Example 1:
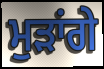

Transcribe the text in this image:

ਮੁੜਾਂਗੇ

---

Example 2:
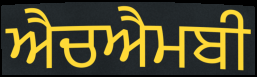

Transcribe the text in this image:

ਐਚਐਮਬੀ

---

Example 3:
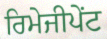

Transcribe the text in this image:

ਰਿਮੇਜੀਪੇਂਟ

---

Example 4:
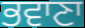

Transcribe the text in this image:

ਭਵਾਣਾ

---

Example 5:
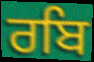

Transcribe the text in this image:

ਰਬਿ